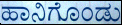
ಹಾನಿಗೊಂಡು